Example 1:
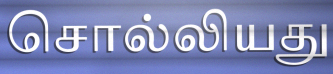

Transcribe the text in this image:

சொல்லியது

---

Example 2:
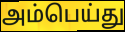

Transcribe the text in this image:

அம்பெய்து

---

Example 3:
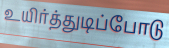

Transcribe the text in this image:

உயிர்த்துடிப்போடு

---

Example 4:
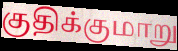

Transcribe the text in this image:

குதிக்குமாறு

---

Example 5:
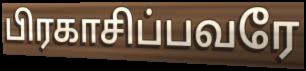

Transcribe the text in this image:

பிரகாசிப்பவரே